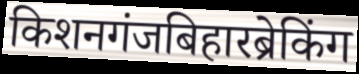
किशनगंजबिहारब्रेकिंग